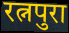
रत्नपुरा